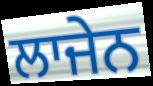
ਲਾਜੇਨ